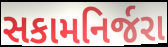
સકામનિર્જરા